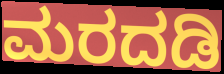
ಮರದಡಿ